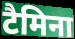
टैमिना